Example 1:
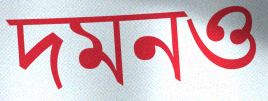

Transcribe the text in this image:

দমনও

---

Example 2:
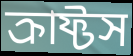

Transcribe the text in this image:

ক্রাফ্টস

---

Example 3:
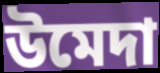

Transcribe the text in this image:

উমেদা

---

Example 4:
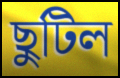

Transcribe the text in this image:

ছুটিল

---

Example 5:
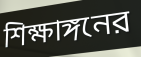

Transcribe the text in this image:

শিক্ষাঙ্গনের